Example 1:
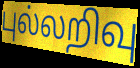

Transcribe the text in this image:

புல்லறிவு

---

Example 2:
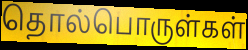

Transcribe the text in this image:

தொல்பொருள்கள்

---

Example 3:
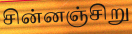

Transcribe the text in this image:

சின்னஞ்சிறு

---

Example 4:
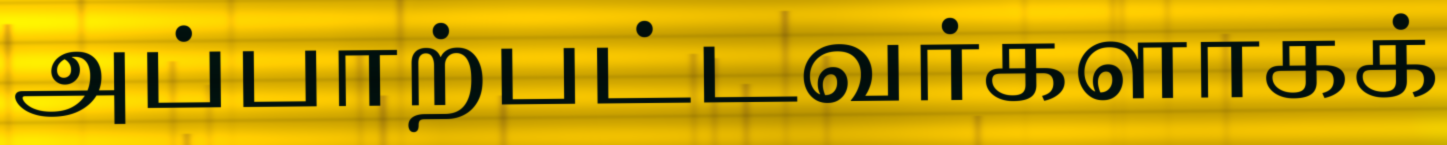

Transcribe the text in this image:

அப்பாற்பட்டவர்களாகக்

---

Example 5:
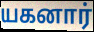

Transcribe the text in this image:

யகனார்